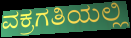
ವಕ್ರಗತಿಯಲ್ಲಿ